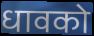
धावको